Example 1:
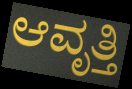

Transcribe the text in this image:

ಆವೃತ್ತಿ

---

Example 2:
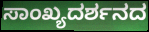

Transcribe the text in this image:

ಸಾಂಖ್ಯದರ್ಶನದ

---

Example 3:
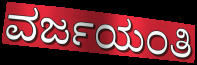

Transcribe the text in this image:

ವರ್ಜಯಂತಿ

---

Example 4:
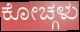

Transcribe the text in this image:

ಕೋಚ್ಗಳು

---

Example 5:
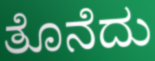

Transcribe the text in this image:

ತೊನೆದು